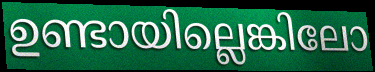
ഉണ്ടായില്ലെങ്കിലോ